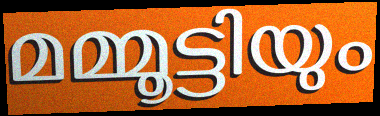
മമ്മൂട്ടിയും